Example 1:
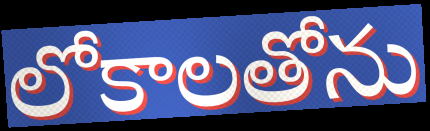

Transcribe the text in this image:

లోకాలతోను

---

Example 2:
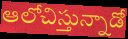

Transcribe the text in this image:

ఆలోచిస్తున్నాడో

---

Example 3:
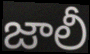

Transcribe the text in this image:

జాలీ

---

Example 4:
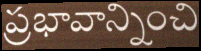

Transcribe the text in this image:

ప్రభావాన్నించి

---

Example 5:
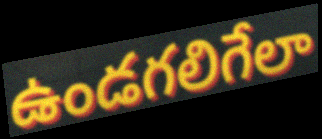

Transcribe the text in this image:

ఉండగలిగేలా